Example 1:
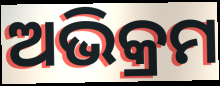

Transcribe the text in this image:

ଅଭିକ୍ରମ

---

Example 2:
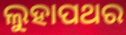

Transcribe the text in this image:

ଲୁହାପଥର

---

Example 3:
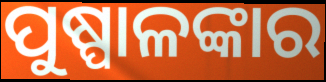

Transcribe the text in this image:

ପୁଷ୍ପାଳଙ୍କାର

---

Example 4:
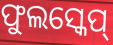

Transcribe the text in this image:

ଫୁଲସ୍କେପ୍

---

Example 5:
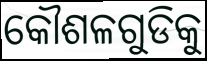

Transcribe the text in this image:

କୌଶଳଗୁଡିକୁ